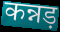
कन्नड़